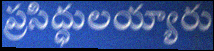
ప్రసిద్ధులయ్యారు